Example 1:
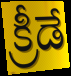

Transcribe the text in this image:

క్రీడే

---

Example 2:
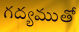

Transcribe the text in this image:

గద్యముతో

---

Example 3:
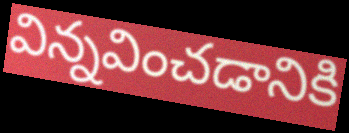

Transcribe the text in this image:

విన్నవించడానికి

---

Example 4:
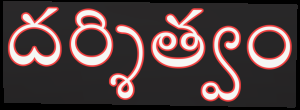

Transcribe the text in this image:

దర్శిత్వం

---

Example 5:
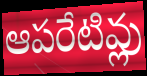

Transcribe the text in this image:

ఆపరేటివ్లు